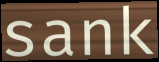
sank